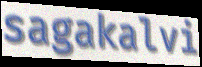
sagakalvi